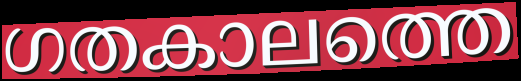
ഗതകാലത്തെ